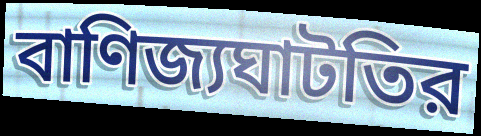
বাণিজ্যঘাটতির